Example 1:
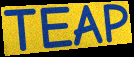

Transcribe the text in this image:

TEAP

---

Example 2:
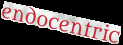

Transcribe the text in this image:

endocentric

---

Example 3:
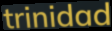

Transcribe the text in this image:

trinidad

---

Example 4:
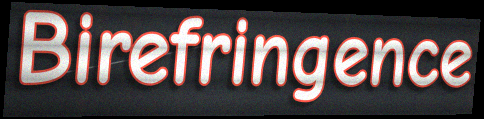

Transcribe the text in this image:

Birefringence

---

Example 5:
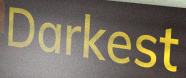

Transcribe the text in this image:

Darkest